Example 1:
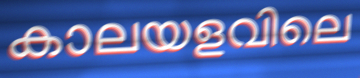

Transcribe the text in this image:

കാലയളവിലെ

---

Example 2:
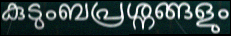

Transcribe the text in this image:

കുടുംബപ്രശ്നങ്ങളും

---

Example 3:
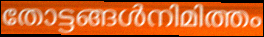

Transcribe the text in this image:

തോട്ടങ്ങൾനിമിത്തം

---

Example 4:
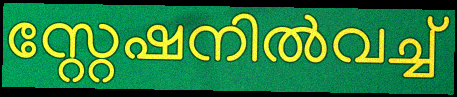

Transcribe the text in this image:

സ്റ്റേഷനിൽവച്ച്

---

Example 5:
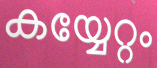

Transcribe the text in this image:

കയ്യേറ്റം